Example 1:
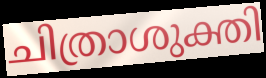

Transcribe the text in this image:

ചിത്രാശുക്തി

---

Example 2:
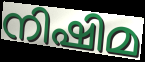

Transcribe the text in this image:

നിഷിമ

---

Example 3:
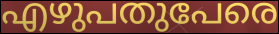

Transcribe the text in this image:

എഴുപതുപേരെ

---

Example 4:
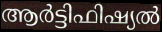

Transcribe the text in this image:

ആർട്ടിഫിഷ്യൽ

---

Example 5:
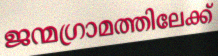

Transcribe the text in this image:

ജന്മഗ്രാമത്തിലേക്ക്